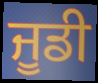
ਜੂਡੀ